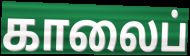
காலைப்